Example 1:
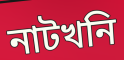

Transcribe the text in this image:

নাটখনি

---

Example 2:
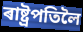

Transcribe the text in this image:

ৰাষ্ট্ৰপতিলৈ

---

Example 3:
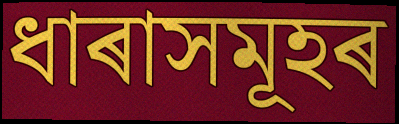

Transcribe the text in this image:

ধাৰাসমূহৰ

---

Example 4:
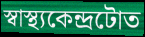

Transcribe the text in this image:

স্বাস্থ্যকেন্দ্ৰটোত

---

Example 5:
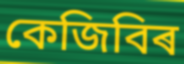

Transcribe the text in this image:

কেজিবিৰ